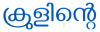
ക്രുളിന്റെ